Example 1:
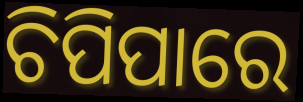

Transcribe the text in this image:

ଚିପିପାରେ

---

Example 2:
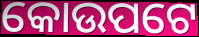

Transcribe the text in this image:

କୋଉପଟେ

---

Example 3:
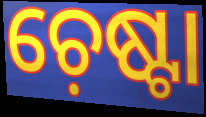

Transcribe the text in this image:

ଚ଼େଷ୍ଟା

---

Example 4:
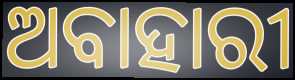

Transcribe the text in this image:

ଅବାହାରୀ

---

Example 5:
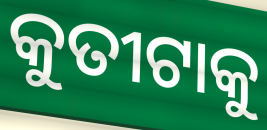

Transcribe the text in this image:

କୁତୀଟାକୁ